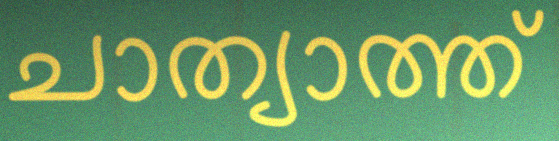
ചാത്യാത്ത്